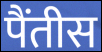
पैंतीस